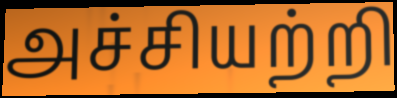
அச்சியற்றி